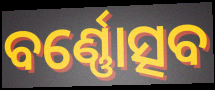
ବର୍ଣ୍ଣୋତ୍ସବ